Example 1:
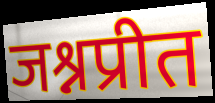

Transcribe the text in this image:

जश्नप्रीत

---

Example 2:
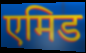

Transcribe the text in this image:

एमिड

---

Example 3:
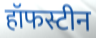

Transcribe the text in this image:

हॉफस्टीन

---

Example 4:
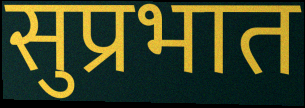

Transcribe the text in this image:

सुप्रभात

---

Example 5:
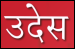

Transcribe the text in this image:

उदेस